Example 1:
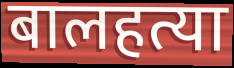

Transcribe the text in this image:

बालहत्या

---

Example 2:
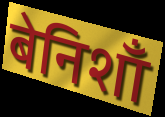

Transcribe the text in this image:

बेनिशाँ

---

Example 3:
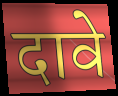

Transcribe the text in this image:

दावे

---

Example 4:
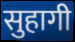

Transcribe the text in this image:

सुहागी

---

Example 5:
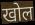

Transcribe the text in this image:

खोल